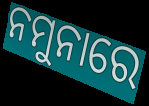
ନମୁନାରେ